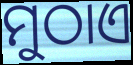
ମୁଠାଏ